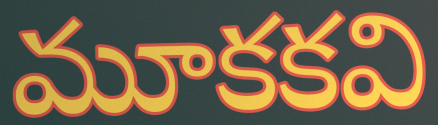
మూకకవి